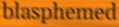
blasphemed